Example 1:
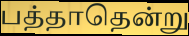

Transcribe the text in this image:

பத்தாதென்று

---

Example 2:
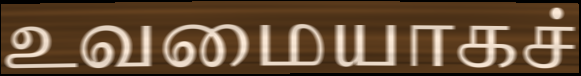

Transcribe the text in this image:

உவமையாகச்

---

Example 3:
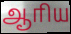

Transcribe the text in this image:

ஆரிய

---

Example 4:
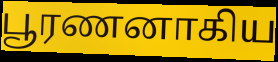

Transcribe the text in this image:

பூரணனாகிய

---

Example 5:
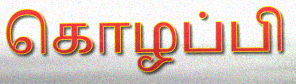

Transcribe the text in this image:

கொழப்பி